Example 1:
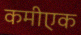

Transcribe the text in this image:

कमीएक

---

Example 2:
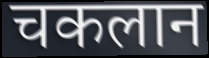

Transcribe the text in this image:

चकलान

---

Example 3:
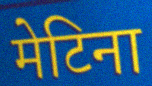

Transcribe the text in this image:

मेटिना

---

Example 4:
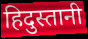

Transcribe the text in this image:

हिदुस्तानी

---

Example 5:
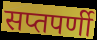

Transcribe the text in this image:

सप्तपर्णी